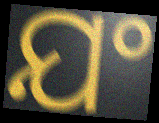
ଯଂ